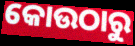
କୋଉଠାରୁ